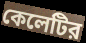
কেলেটির